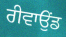
ਰੀਵਾਉਂਡ